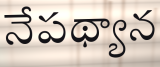
నేపథ్యాన